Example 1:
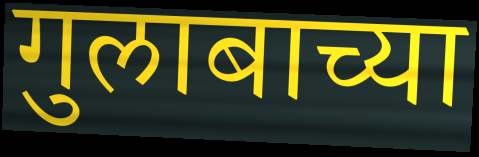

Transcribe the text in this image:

गुलाबाच्या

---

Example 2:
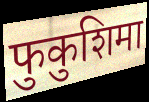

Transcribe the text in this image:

फुकुशिमा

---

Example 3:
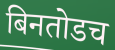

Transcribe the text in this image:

बिनतोडच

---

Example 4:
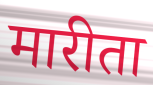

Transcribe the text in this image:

मारीता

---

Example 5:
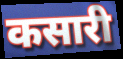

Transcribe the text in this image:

कसारी